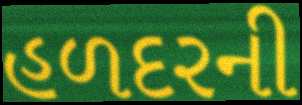
હળદરની